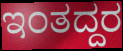
ಇಂತದ್ದರ